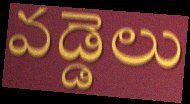
వడ్డెలు